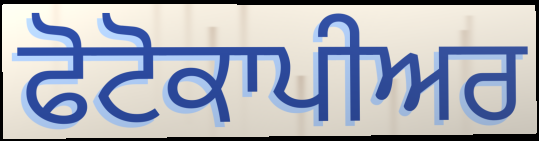
ਫੋਟੋਕਾਪੀਅਰ